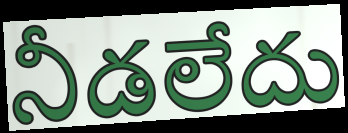
నీడలేదు